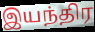
இயந்திர